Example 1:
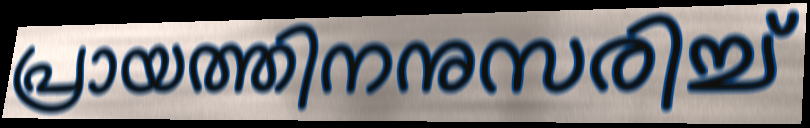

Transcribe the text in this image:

പ്രായത്തിനനുസരിച്ച്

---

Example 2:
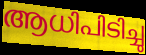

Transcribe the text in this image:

ആധിപിടിച്ചു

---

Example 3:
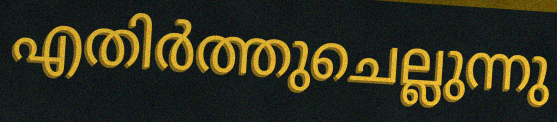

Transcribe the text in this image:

എതിർത്തുചെല്ലുന്നു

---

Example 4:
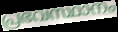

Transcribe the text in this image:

പ്രഭവസ്ഥാനം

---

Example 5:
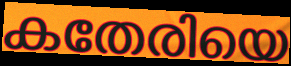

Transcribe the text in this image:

കതേരിയെ